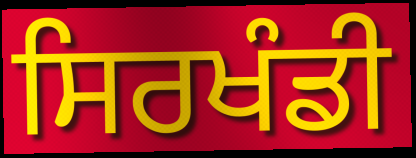
ਸਿਰਖੰਡੀ